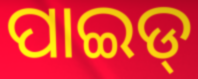
ପାଇଡ୍